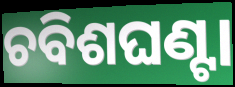
ଚବିଶଘଣ୍ଟା